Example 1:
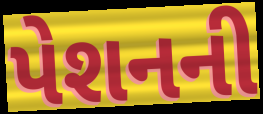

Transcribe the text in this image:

પેશનની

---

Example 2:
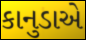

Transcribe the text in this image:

કાનુડાએ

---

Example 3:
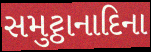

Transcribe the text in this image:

સમુટ્ઠાનાદિના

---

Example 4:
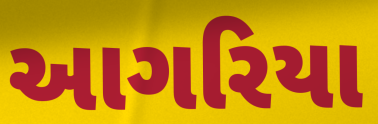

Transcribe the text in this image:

આગરિયા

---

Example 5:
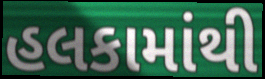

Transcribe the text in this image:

હલકામાંથી